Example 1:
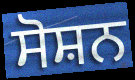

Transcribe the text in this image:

ਸੋਸ਼ਨ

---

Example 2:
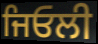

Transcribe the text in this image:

ਜਿਓਲੀ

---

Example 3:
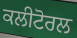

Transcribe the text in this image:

ਕਲੀਟੋਰਲ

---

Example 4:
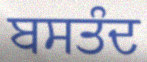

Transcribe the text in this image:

ਬਸਤੰਦ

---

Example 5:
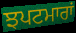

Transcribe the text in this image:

ਝਪਟਮਾਰਾਂ